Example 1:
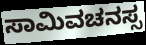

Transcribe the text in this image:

ಸಾಮಿವಚನಸ್ಸ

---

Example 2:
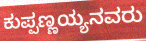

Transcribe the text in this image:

ಕುಪ್ಪಣ್ಣಯ್ಯನವರು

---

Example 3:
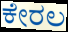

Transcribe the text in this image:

ಕೇರಲ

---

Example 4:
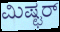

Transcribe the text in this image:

ಮಿಷ್ಟರ್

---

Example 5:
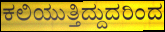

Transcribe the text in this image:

ಕಲಿಯುತ್ತಿದ್ದುದರಿಂದ